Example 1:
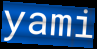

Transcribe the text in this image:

yami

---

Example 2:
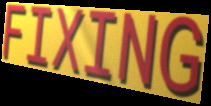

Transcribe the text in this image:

FIXING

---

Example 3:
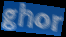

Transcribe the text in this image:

ghor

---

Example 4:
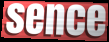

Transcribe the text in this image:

sence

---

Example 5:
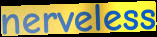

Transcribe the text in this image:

nerveless